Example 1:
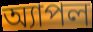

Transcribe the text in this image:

অ্যাপল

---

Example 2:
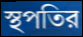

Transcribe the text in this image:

স্থপতির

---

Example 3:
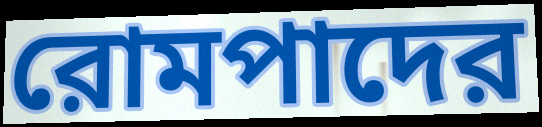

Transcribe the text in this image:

রোমপাদের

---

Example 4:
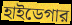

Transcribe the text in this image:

হাইডেগার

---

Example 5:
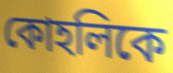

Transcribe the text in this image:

কোহলিকে